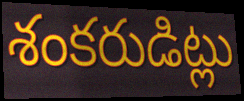
శంకరుడిట్లు